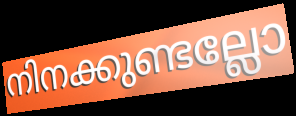
നിനക്കുണ്ടല്ലോ